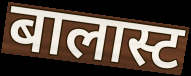
बालास्ट